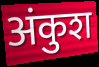
अंकुश